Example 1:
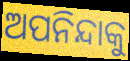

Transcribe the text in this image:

ଅପନିନ୍ଦାକୁ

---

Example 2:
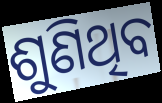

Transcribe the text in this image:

ଶୁଣିଥିବ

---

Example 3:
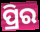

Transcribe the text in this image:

ପ୍ରିର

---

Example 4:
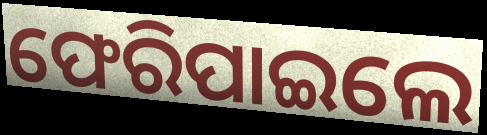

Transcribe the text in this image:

ଫେରିପାଇଲେ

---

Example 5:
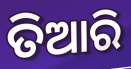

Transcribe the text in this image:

ତିଆରି